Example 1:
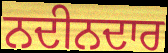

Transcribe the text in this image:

ਨਦੀਨਦਾਰ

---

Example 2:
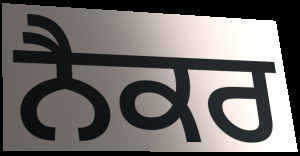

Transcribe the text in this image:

ਨੈਕਰ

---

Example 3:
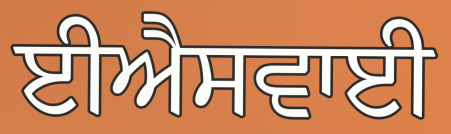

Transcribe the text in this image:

ਈਐਸਵਾਈ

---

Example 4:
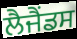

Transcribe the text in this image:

ਲੈਜੈਂਡਸ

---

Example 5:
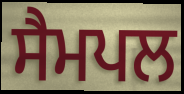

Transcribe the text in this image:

ਸੈਮਪਲ